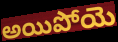
అయిపోయె